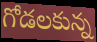
గోడలకున్న